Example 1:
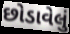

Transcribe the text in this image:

છોડાવેલું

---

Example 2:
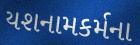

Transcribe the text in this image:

યશનામકર્મના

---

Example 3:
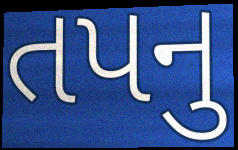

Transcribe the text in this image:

તપનુ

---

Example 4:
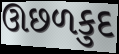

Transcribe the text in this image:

ઊછળકુદ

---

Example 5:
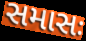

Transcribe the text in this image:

સમાસઃ